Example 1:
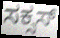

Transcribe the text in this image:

ಸಕ್ಸಸ್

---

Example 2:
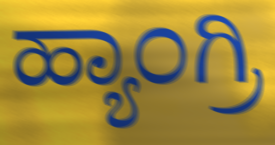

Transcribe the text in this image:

ಹ್ಯಾಂಗ್ರಿ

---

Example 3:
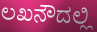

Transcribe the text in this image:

ಲಖನೌದಲ್ಲಿ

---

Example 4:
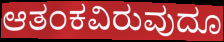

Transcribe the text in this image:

ಆತಂಕವಿರುವುದೂ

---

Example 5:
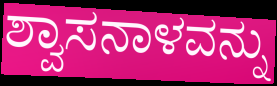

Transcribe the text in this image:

ಶ್ವಾಸನಾಳವನ್ನು